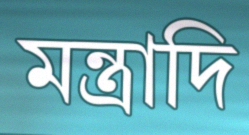
মন্ত্রাদি